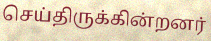
செய்திருக்கின்றனர்